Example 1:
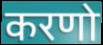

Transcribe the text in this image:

करणो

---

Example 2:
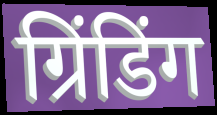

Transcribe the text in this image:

ग्रिंडिंग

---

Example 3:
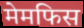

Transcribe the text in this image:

मेमफिस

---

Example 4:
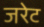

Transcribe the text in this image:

जरेट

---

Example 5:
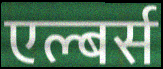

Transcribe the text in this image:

एल्बर्स